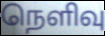
நெளிவு